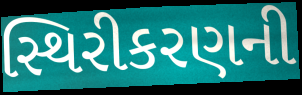
સ્થિરીકરણની